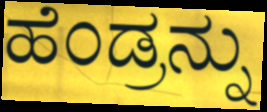
ಹೆಂಡ್ರನ್ನು